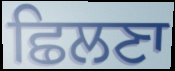
ਛਿਲਣਾ